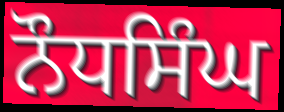
ਨੌਧਸਿੰਘ